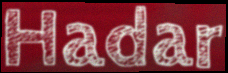
Hadar